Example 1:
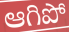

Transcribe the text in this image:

ఆగిపో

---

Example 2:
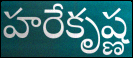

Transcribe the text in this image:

హరేకృష్ణ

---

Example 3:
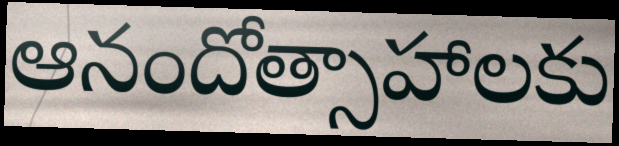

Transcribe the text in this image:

ఆనందోత్సాహాలకు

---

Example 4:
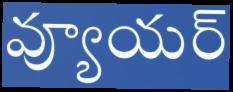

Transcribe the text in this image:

వ్యూయర్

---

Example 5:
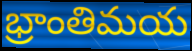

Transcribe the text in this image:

భ్రాంతిమయ